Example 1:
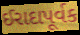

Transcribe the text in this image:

ઈરાદાપૂર્વક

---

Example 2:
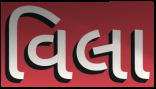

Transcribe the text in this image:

વિલા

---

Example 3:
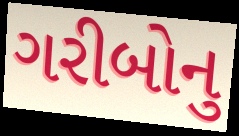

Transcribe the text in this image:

ગરીબોનુ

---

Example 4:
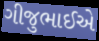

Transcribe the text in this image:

ગીજુભાઈએ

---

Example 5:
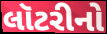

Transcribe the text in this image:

લૉટરીનો